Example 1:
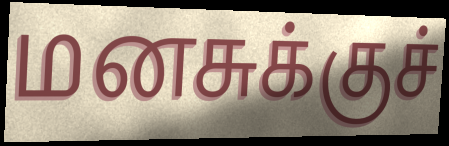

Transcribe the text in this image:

மனசுக்குச்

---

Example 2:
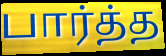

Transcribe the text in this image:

பார்த்த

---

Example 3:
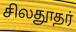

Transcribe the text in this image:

சிலதூதர்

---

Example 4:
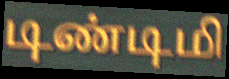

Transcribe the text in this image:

டிண்டிமி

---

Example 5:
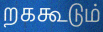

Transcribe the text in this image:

றககூடும்